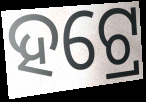
ହଟ୍ରେ